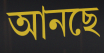
আনছে